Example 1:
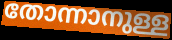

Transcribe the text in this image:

തോന്നാനുള്ള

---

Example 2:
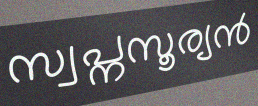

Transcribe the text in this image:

സ്വപ്നസൂര്യൻ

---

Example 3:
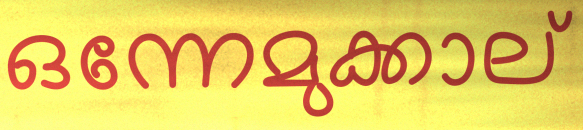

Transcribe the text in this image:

ഒന്നേമുക്കാല്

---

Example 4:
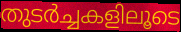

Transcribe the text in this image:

തുടർച്ചകളിലൂടെ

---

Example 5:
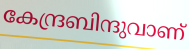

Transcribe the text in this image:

കേന്ദ്രബിന്ദുവാണ്